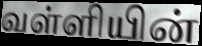
வள்ளியின்